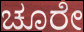
ಚೂರೇ